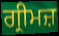
ਗ੍ਰੀਮਜ਼